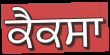
ਕੈਕਸਾ